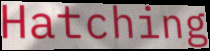
Hatching